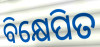
ବିକ୍ଷେପିତ